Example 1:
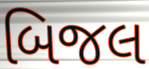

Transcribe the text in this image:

બિજલ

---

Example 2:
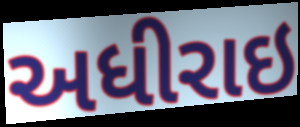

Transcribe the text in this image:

અધીરાઇ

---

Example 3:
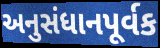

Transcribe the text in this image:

અનુસંધાનપૂર્વક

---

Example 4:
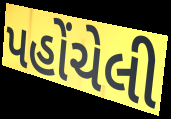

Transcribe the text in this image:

પહોંચેલી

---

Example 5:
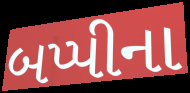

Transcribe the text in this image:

બપ્પીના